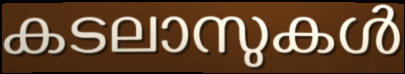
കടലാസുകൾ